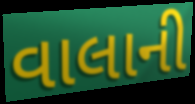
વાલાની